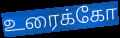
உரைக்கோ